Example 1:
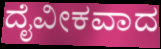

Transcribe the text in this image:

ದೈವೀಕವಾದ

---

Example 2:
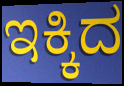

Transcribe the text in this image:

ಇಕ್ಕಿದ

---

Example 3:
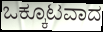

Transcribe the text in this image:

ಒಕ್ಕೂಟವಾದ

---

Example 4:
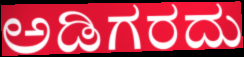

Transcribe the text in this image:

ಅಡಿಗರದು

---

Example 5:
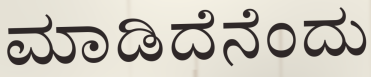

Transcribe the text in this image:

ಮಾಡಿದೆನೆಂದು